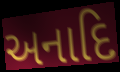
અનાદિ